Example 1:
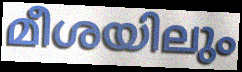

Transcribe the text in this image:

മീശയിലും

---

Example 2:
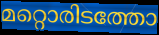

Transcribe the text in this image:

മറ്റൊരിടത്തോ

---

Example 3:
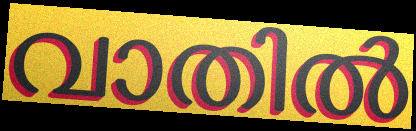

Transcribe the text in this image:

വാതിൽ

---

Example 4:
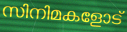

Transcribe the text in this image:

സിനിമകളോട്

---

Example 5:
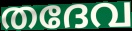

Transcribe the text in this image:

തദേവ